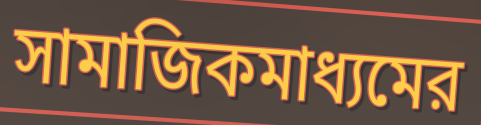
সামাজিকমাধ্যমের